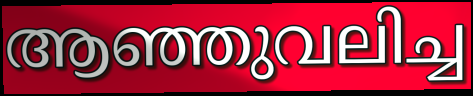
ആഞ്ഞുവലിച്ച